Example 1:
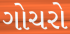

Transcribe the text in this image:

ગોચરો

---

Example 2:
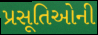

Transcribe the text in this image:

પ્રસૂતિઓની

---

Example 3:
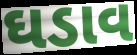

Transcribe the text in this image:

ઘડાવ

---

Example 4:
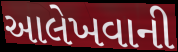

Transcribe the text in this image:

આલેખવાની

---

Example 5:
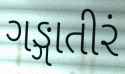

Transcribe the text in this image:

ગઙ્ગાતીરં